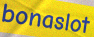
bonaslot